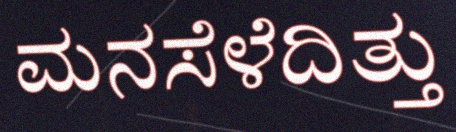
ಮನಸೆಳೆದಿತ್ತು